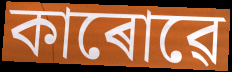
কাৰোৱে